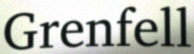
Grenfell